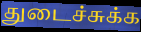
துடைச்சுக்க